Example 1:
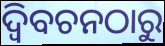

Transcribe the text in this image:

ଦ୍ବିବଚନଠାରୁ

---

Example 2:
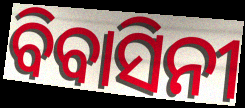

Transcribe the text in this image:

ବିବାସିନୀ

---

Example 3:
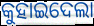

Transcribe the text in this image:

କୁହାଇଦେଲା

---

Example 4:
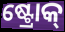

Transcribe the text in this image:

ଷ୍ଟ୍ରୋକ୍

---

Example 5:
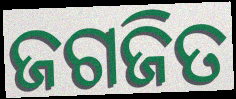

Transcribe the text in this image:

ଜଗଜିତ